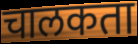
चालकता